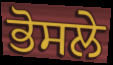
ਭੋਸਲੇ